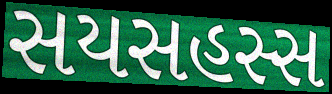
સયસહસ્સ